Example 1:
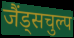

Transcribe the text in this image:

जैंड्सचुल्प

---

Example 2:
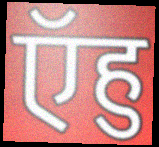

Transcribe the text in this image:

ऍहु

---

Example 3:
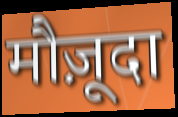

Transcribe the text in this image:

मौज़ूदा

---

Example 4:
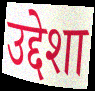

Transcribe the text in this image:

उद्देशा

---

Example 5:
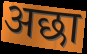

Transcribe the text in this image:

अछा